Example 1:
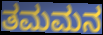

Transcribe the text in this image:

ತಮಮನ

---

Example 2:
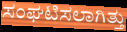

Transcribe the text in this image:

ಸಂಘಟಿಸಲಾಗಿತ್ತು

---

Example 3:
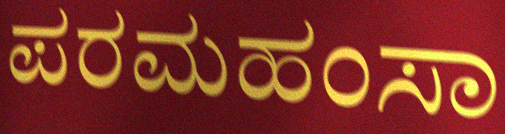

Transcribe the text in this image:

ಪರಮಹಂಸಾ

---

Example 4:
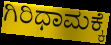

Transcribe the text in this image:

ಗಿರಿಧಾಮಕ್ಕೆ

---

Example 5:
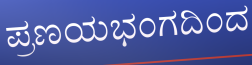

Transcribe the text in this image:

ಪ್ರಣಯಭಂಗದಿಂದ